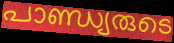
പാണ്ഡ്യരുടെ